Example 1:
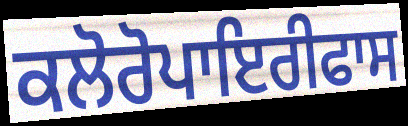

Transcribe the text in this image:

ਕਲੋਰੋਪਾਇਰੀਫਾਸ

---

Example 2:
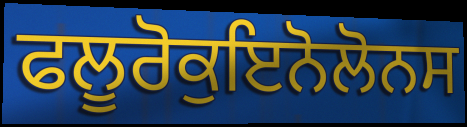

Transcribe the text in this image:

ਫਲੂਰੋਕੁਇਨੋਲੋਨਸ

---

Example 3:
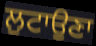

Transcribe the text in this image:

ਲੁਟਾਉਣਾ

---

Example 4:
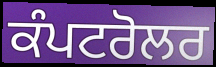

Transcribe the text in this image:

ਕੰਪਟਰੋਲਰ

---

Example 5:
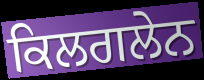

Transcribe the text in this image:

ਕਿਲਗਲੇਨ